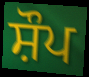
ਸ਼ੌਪ